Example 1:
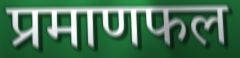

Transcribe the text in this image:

प्रमाणफल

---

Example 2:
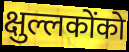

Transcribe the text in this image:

क्षुल्लकोंको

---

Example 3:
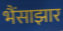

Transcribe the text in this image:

भैंसाझार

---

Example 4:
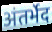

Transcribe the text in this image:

अंतर्भेद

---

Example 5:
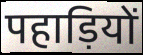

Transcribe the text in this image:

पहाड़ियों